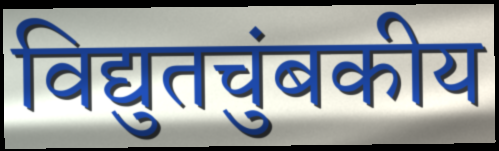
विद्युतचुंबकीय